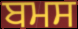
ਬਮਸ